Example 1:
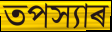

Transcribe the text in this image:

তপস্যাৰ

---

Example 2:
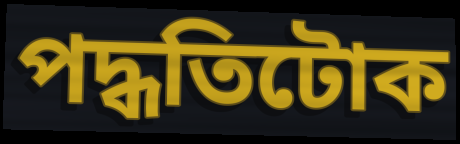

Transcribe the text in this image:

পদ্ধতিটোক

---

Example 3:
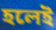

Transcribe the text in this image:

হলেই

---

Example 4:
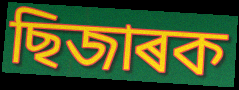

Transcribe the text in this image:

ছিজাৰক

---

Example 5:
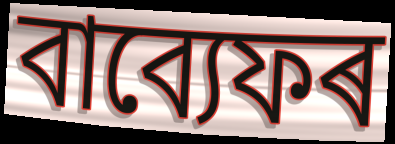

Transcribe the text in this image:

বাব্যেফৰ